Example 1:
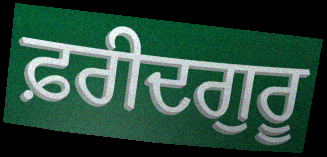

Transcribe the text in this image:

ਫ਼ਰੀਦਗੁਰੂ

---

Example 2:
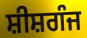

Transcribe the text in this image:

ਸ਼ੀਸ਼ਗੰਜ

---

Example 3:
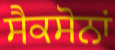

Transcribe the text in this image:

ਸੈਕਸੋਨਾਂ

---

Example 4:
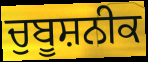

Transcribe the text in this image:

ਚੁਬੂਸ਼ਨੀਕ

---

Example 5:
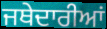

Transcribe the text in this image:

ਜਥੇਦਾਰੀਆਂ